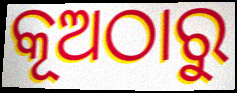
କୂଅଠାରୁ